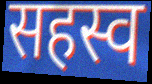
सहस्व